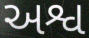
અશ્વ